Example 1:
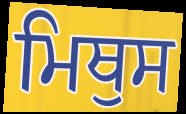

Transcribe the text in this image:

ਮਿਥੁਸ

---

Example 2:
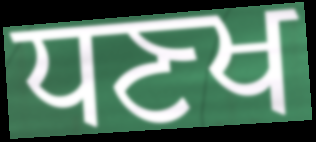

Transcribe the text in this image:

ਧਣਖ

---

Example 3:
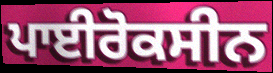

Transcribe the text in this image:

ਪਾਈਰੋਕਸੀਨ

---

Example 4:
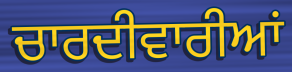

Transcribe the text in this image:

ਚਾਰਦੀਵਾਰੀਆਂ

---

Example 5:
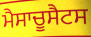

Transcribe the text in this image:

ਮੈਸਾਚੂਸੈਟਸ